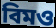
বিমও